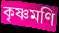
কৃষ্ণমণি